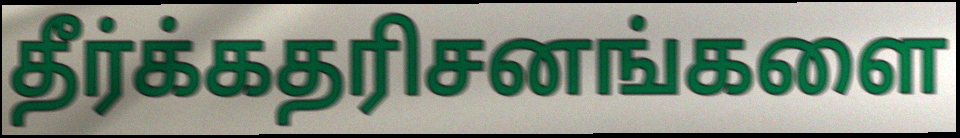
தீர்க்கதரிசனங்களை